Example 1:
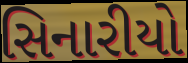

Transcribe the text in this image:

સિનારીયો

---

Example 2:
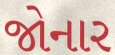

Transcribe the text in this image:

જોનાર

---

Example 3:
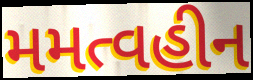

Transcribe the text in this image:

મમત્વહીન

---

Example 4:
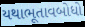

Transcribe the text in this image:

યથાભૂતાવબોધો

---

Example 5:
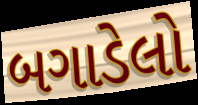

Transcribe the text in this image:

બગાડેલો